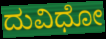
ದುವಿಧೋ